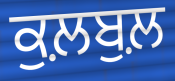
ਕੁਲ਼ਬੁਲ਼